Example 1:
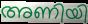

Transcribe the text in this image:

അണിയി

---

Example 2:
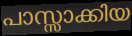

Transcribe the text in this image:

പാസ്സാക്കിയ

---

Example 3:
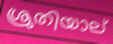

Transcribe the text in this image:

ശ്രുതിയാല്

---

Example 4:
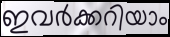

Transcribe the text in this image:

ഇവർക്കറിയാം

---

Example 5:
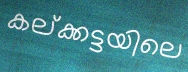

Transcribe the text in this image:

കല്ക്കട്ടയിലെ